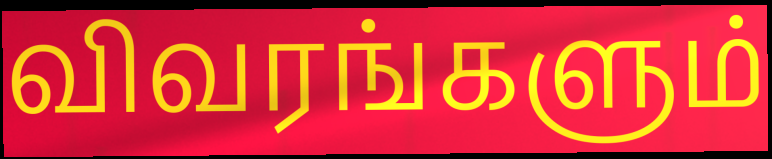
விவரங்களும்